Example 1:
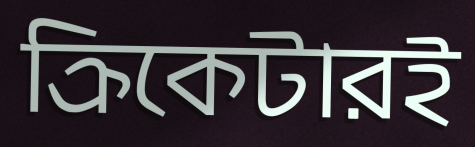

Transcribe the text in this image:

ক্রিকেটারই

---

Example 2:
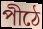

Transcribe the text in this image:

পীঠে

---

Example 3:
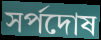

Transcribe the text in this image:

সর্পদোষ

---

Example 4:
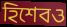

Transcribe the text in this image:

হিশেবও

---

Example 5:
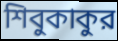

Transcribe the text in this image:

শিবুকাকুর